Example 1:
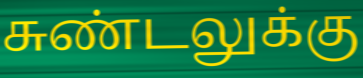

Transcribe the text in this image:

சுண்டலுக்கு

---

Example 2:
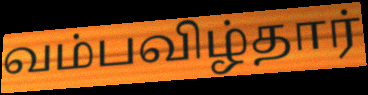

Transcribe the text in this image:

வம்பவிழ்தார்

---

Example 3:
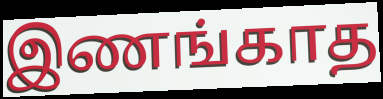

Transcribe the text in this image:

இணங்காத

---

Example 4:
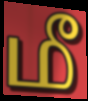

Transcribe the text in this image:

மீ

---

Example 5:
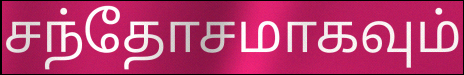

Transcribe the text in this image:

சந்தோசமாகவும்